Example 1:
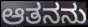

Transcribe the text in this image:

ಆತನನು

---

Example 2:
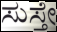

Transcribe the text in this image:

ಸುಸ್ತೇ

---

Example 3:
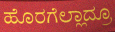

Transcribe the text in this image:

ಹೊರಗೆಲ್ಲಾದ್ರೂ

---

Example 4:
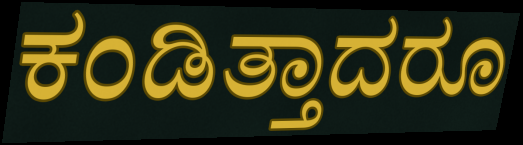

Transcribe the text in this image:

ಕಂಡಿತ್ತಾದರೂ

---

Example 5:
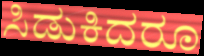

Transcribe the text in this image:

ಸಿಡುಕಿದರೂ